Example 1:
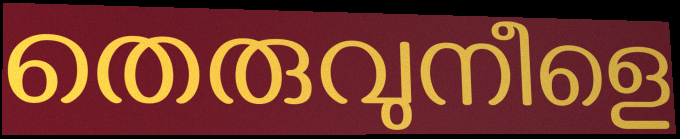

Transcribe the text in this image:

തെരുവുനീളെ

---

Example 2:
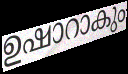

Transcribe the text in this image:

ഉഷാറാകും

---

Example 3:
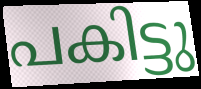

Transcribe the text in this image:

പകിട്ടു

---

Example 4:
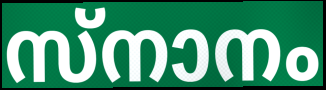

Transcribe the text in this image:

സ്നാനം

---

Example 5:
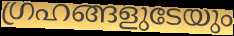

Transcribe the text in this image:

ഗ്രഹങ്ങളുടേയും